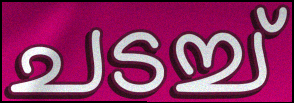
ചടച്ച്